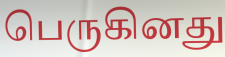
பெருகினது